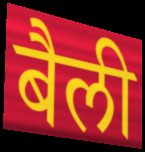
बैली